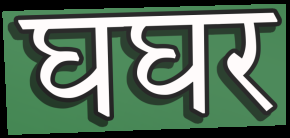
घघर